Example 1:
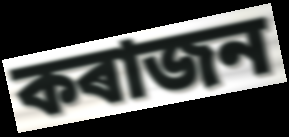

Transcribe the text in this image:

কৰাজন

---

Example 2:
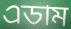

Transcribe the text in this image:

এডাম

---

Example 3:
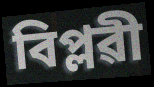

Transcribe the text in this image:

বিপ্লৱী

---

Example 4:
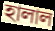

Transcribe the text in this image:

হালাল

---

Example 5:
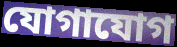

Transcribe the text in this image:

যোগাযোগ